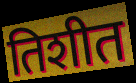
तिशीत